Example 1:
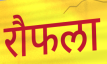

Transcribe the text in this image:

रौफला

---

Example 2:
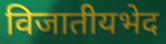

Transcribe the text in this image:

विजातीयभेद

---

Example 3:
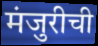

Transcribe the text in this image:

मंजुरीची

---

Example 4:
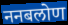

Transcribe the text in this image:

ननबलोण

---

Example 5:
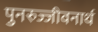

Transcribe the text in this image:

पुनरुज्जीवनार्थ